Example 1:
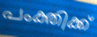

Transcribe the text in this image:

പംക്തിക്ക്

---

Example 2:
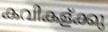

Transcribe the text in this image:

കവികള്ക്കു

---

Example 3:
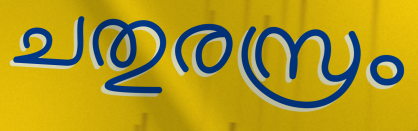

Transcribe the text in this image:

ചതുരസ്രം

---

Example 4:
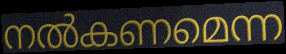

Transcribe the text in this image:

നൽകണമെന്ന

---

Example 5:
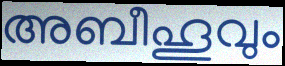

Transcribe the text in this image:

അബീഹൂവും